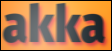
akka